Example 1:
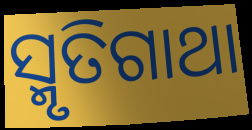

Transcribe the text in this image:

ସ୍ମୃତିଗାଥା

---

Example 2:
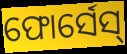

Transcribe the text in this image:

ଫୋର୍ସେସ୍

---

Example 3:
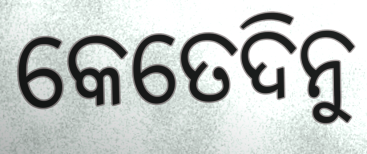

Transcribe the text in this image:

କେତେଦିନୁ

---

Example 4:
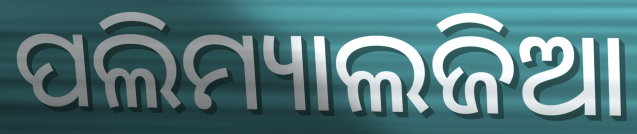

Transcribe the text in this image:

ପଲିମ୍ୟାଲଜିଆ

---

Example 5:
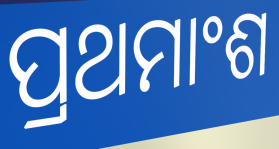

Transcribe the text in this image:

ପ୍ରଥମାଂଶ